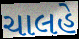
ચાલહે